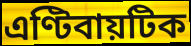
এণ্টিবায়টিক